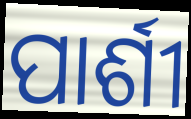
ପାର୍ଶୀ